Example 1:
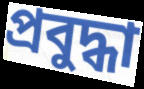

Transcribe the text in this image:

প্রবুদ্ধা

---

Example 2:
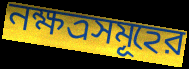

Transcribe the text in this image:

নক্ষত্রসমূহের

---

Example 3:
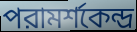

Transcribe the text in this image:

পরামর্শকেন্দ্র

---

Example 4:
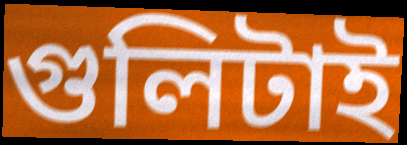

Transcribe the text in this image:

গুলিটাই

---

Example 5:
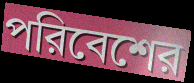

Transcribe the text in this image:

পরিবেশের